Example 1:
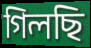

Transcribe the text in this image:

গিলছি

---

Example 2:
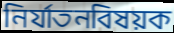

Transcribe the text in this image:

নির্যাতনবিষয়ক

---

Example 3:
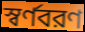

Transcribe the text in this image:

স্বর্ণবরণ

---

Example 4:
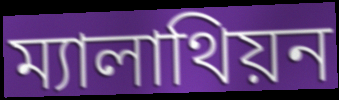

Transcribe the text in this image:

ম্যালাথিয়ন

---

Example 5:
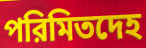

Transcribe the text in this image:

পরিমিতদেহ